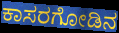
ಕಾಸರಗೋಡಿನ